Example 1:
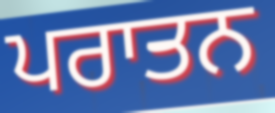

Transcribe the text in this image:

ਪਰਾਤਨ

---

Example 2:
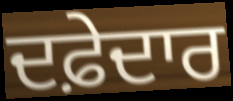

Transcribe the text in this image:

ਦਫ਼ੇਦਾਰ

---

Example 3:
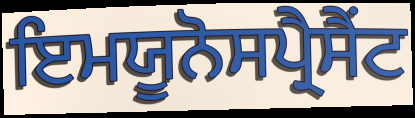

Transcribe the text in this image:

ਇਮਯੂਨੋਸਪ੍ਰੈਸੈਂਟ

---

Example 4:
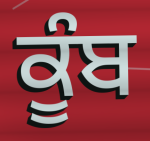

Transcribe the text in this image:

ਕੂੰਬ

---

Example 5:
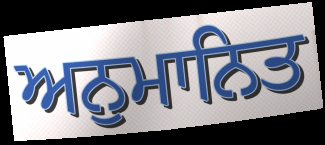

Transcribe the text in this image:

ਅਨੁਮਾਨਿਤ